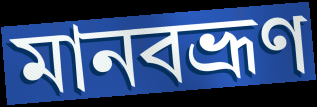
মানবভ্রূণ